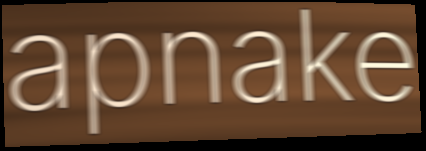
apnake